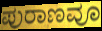
ಪುರಾಣವೂ